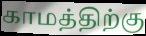
காமத்திற்கு